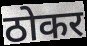
ठोकर